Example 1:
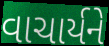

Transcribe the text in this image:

વાચાર્યને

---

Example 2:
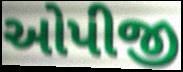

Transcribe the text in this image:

ઓપીજી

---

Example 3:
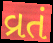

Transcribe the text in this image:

વ્રતં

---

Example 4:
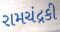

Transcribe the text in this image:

રામચંદ્રકી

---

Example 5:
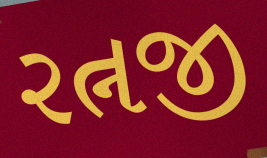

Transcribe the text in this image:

રત્નજી